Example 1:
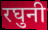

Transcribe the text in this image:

रघुनी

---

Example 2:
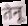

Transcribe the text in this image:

तेनू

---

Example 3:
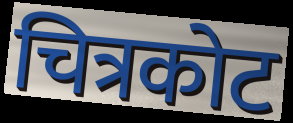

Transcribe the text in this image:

चित्रकोट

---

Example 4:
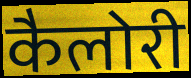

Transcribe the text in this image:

कैलोरी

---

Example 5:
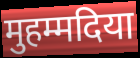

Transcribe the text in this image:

मुहम्मदिया